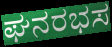
ಘನರಭಸ